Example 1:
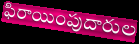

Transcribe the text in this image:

ఫిరాయింపుదారుల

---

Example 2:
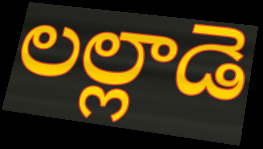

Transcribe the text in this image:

లల్లాడె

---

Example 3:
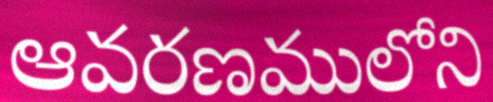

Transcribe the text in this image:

ఆవరణములోని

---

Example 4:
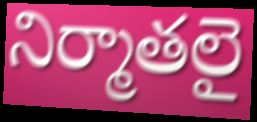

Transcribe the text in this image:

నిర్మాతలై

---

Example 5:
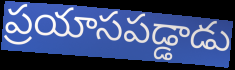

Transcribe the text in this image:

ప్రయాసపడ్డాడు